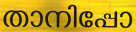
താനിപ്പോ